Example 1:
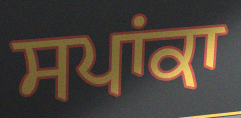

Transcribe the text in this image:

ਸਪਾਂਕਾ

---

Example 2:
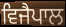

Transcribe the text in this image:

ਵਿਜੈਪਾਲ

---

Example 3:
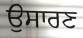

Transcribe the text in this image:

ਉਸਾਰਣ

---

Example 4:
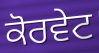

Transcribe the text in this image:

ਕੋਰਵੇਟ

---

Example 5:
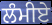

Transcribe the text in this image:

ਲੰਮੀਏ